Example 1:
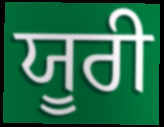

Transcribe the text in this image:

ਯੂਰੀ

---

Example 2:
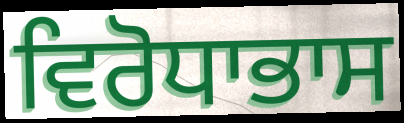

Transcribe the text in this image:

ਵਿਰੋਧਾਭਾਸ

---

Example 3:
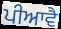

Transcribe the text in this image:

ਪੀਆਵੈ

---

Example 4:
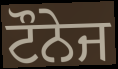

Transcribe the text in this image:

ਟੌਨੇਜ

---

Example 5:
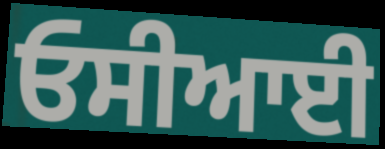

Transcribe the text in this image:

ਓਸੀਆਈ